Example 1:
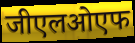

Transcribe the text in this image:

जीएलओएफ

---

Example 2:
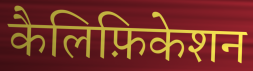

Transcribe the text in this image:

कैलिफ़िकेशन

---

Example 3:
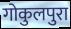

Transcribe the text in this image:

गोकुलपुरा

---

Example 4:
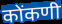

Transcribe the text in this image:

कोंकणी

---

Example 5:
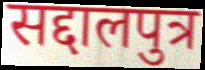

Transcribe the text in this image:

सद्दालपुत्र